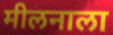
मीलनाला